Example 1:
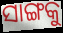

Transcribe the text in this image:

ସାଙ୍ଗକୁ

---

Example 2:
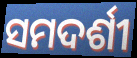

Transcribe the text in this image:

ସମଦର୍ଶୀ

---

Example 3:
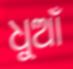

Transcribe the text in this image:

ଧୁଆଁ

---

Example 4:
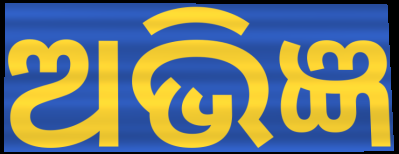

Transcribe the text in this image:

ଅଭିଜ୍ଞ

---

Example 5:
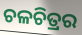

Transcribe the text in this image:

ଚଳଚିତ୍ରର